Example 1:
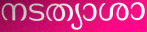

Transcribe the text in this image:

നടത്യാശാ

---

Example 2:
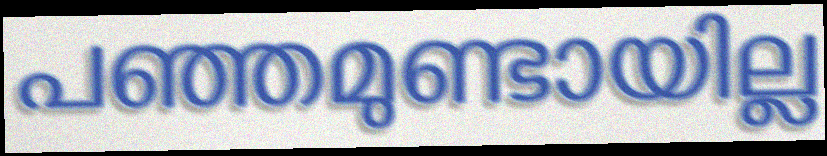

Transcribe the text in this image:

പഞ്ഞമുണ്ടായില്ല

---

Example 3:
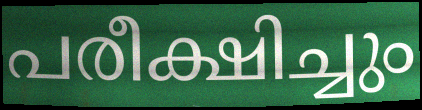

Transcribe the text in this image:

പരീക്ഷിച്ചും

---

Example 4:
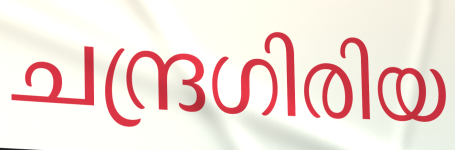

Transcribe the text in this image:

ചന്ദ്രഗിരിയ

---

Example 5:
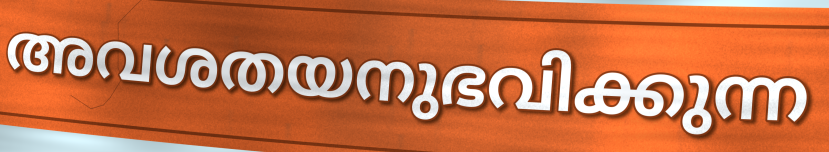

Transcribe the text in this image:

അവശതയനുഭവിക്കുന്ന